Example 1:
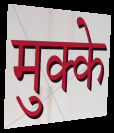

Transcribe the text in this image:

मुक्‍के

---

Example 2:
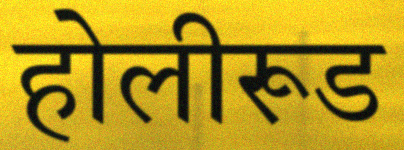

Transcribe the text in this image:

होलीरूड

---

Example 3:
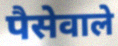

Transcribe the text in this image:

पैसेवाले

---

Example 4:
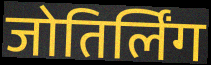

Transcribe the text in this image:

जोतिर्लिंग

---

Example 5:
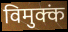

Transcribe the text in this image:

विमुक्कं